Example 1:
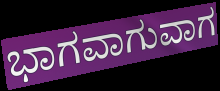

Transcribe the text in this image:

ಭಾಗವಾಗುವಾಗ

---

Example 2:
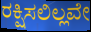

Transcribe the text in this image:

ರಕ್ಷಿಸಲಿಲ್ಲವೇ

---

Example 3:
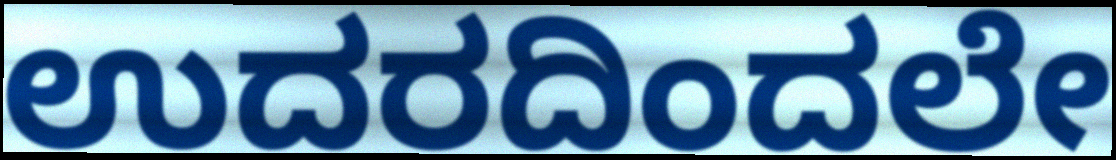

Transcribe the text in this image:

ಉದರದಿಂದಲೇ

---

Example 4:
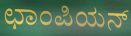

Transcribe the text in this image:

ಛಾಂಪಿಯನ್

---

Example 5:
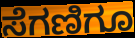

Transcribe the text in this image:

ಸೆಗಣಿಗೂ